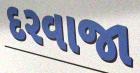
દરવાજા